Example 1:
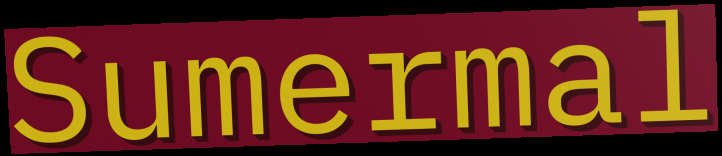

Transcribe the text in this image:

Sumermal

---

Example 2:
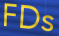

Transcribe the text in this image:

FDs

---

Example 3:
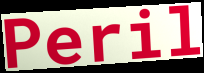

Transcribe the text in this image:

Peril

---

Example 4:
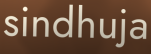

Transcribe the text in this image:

sindhuja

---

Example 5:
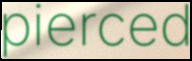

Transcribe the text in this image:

pierced